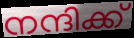
നന്ദിക്ക്